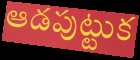
ఆడపుట్టుక